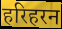
हरिहरन